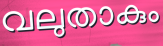
വലുതാകും